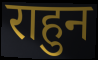
राहुन